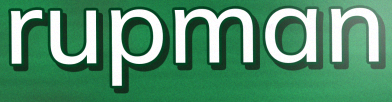
rupman